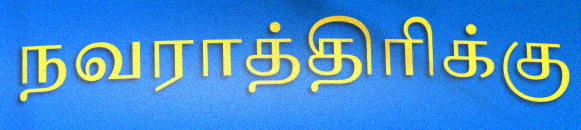
நவராத்திரிக்கு